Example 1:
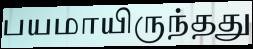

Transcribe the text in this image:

பயமாயிருந்தது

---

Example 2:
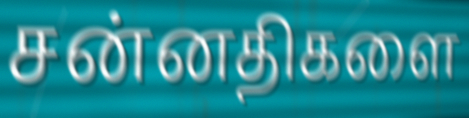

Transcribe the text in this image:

சன்னதிகளை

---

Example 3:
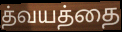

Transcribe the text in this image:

த்வயத்தை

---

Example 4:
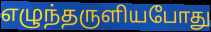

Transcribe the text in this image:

எழுந்தருளியபோது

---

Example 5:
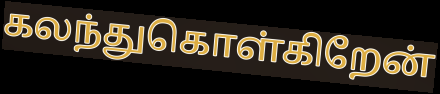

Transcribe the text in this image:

கலந்துகொள்கிறேன்